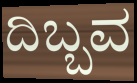
ದಿಬ್ಬವ